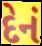
દેનં